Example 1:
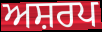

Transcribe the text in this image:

ਅਸ਼ਰਪ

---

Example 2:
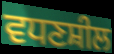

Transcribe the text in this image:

ਵਧਣਸ਼ੀਲ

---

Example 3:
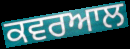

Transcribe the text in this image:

ਕਵਰਆਲ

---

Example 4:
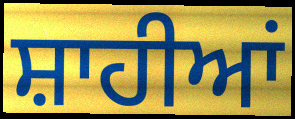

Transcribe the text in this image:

ਸ਼ਾਹੀਆਂ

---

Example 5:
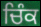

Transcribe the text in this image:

ਚਿੰਕ